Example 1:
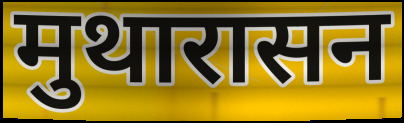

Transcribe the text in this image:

मुथारासन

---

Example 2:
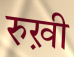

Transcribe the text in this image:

रुख़ी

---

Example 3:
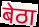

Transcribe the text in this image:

बेठा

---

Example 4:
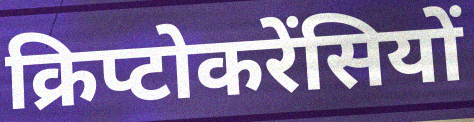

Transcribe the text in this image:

क्रिप्टोकरेंसियों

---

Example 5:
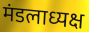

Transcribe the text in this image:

मंडलाध्यक्ष